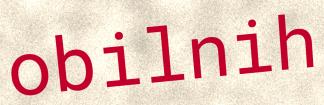
obilnih